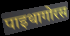
पाइथागोरस